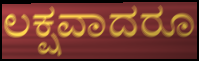
ಲಕ್ಷವಾದರೂ